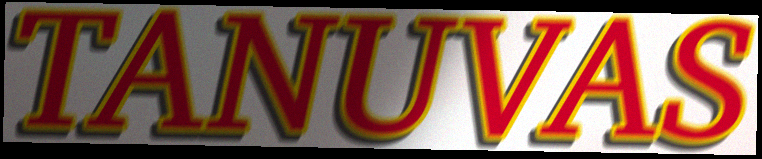
TANUVAS